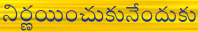
నిర్ణయించుకునేందుకు